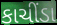
કાચીંડા